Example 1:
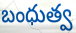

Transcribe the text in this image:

బంధుత్వ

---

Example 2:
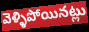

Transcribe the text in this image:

వెళ్ళిపోయినట్లు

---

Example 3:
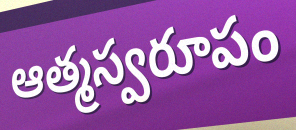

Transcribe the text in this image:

ఆత్మస్వరూపం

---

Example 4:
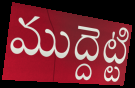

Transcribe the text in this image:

ముద్దెట్టి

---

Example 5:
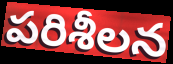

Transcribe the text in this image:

పరిశీలన